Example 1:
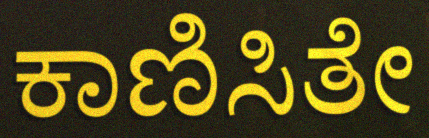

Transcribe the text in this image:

ಕಾಣಿಸಿತೇ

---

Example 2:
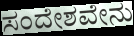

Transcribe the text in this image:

ಸಂದೇಶವೇನು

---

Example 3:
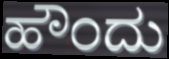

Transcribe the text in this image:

ಹೌಂದು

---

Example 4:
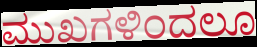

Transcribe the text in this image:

ಮುಖಗಳಿಂದಲೂ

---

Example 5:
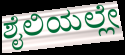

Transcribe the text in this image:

ಶೈಲಿಯಲ್ಲೇ